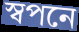
স্বপনে